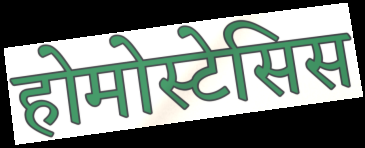
होमोस्टेसिस